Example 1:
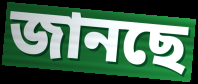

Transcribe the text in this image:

জানছে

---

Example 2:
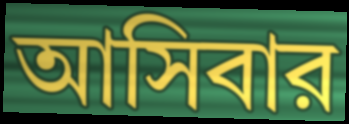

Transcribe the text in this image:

আসিবার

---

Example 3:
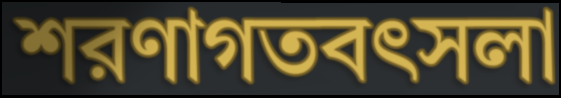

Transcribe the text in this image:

শরণাগতবৎসলা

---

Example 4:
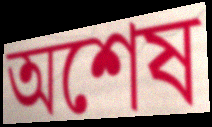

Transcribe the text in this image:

অশেষ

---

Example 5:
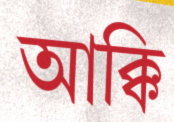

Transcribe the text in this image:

আক্কি